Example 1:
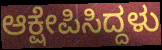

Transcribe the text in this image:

ಆಕ್ಷೇಪಿಸಿದ್ದಳು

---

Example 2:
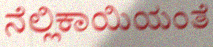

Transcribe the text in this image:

ನೆಲ್ಲಿಕಾಯಿಯಂತೆ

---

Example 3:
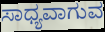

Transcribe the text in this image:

ಸಾಧ್ಯವಾಗುವ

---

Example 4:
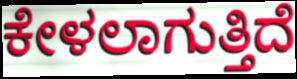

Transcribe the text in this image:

ಕೇಳಲಾಗುತ್ತಿದೆ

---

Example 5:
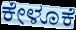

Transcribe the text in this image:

ಕೇಳೂಕೆ